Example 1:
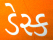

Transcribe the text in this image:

ડેસ્ક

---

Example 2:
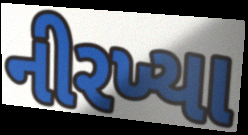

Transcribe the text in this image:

નીરખ્યા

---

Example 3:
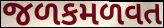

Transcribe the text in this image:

જળકમળવત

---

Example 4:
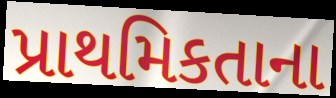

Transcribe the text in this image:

પ્રાથમિકતાના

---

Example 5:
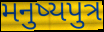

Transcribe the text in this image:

મનુષ્યપુત્ર